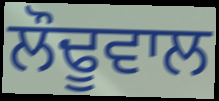
ਲੌਢੂਵਾਲ